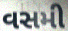
વસમી